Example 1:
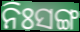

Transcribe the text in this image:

ନିଃସଙ୍ଗ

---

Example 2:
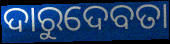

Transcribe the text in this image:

ଦାରୁଦେବତା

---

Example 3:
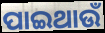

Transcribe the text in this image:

ପାଇଥାଉଁ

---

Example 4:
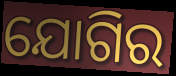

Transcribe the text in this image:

ଯୋଗିର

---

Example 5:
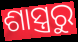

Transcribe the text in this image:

ଶାସ୍ତ୍ରରୁ